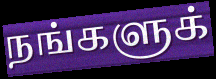
நங்களுக்